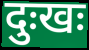
दुःखः